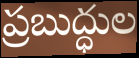
ప్రబుద్ధుల